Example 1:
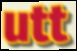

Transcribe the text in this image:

utt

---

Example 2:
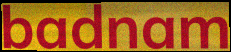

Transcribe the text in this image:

badnam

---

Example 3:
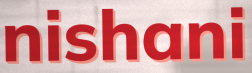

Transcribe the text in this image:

nishani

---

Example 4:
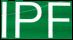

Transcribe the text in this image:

IPF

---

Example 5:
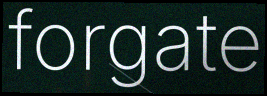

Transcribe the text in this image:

forgate